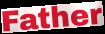
Father